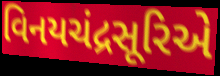
વિનયચંદ્રસૂરિએ